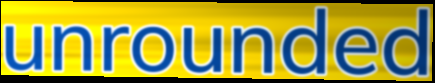
unrounded